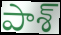
పాశ్